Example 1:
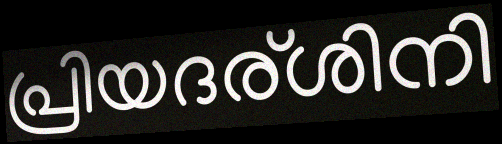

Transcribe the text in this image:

പ്രിയദര്ശിനി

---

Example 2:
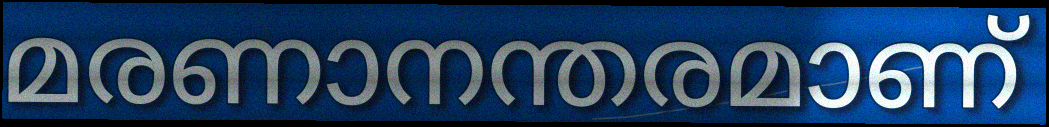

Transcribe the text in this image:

മരണാനന്തരമാണ്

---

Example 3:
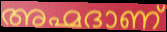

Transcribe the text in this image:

അഹ്മദാണ്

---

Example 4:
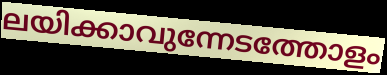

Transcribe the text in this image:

ലയിക്കാവുന്നേടത്തോളം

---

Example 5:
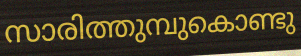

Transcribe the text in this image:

സാരിത്തുമ്പുകൊണ്ടു